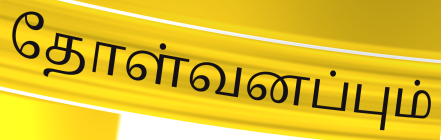
தோள்வனப்பும்